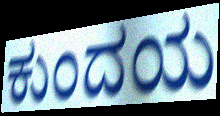
ಕುಂದಯ